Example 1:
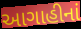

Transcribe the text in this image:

આગાહીનાં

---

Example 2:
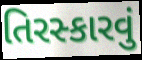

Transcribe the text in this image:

તિરસ્કારવું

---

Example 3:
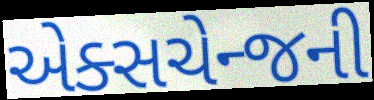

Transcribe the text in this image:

એક્સચેન્જની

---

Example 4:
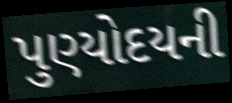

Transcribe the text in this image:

પુણ્યોદયની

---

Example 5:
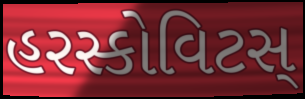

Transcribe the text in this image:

હરસ્કોવિટસ્